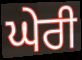
ਘੇਰੀ